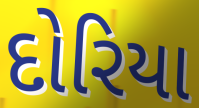
દોરિયા